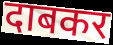
दाबकर